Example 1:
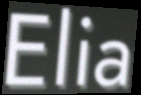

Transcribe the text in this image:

Elia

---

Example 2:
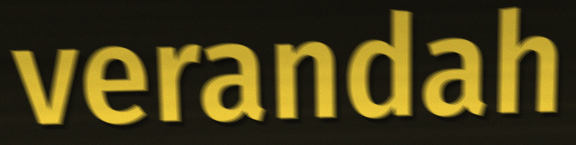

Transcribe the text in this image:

verandah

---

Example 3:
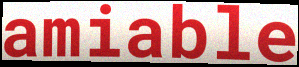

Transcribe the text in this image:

amiable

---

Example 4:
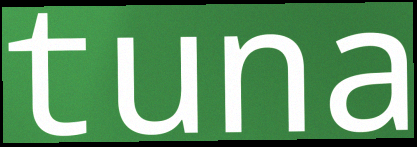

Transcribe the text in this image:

tuna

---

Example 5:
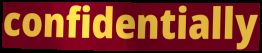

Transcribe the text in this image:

confidentially